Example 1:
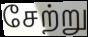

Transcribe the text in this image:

சேற்று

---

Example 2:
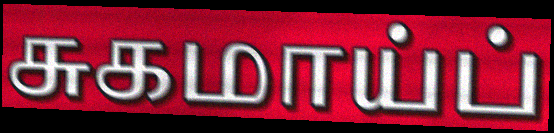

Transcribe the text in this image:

சுகமாய்ப்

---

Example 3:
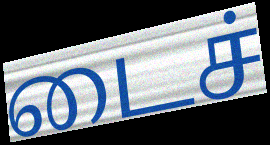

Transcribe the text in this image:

டைச்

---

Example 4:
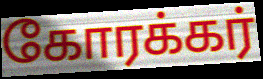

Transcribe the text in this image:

கோரக்கர்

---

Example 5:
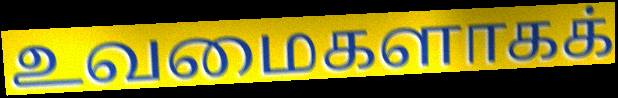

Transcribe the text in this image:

உவமைகளாகக்